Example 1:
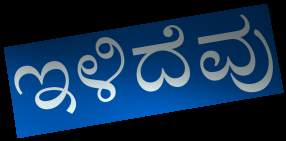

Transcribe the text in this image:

ಇಳಿದೆವು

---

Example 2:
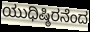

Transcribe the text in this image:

ಯುಧಿಷ್ಠಿರನೆಂದ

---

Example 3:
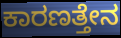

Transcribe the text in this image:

ಕಾರಣತ್ತೇನ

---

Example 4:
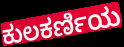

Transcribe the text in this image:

ಕುಲಕರ್ಣಿಯ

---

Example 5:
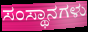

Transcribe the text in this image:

ಸಂಸ್ಥಾನಗಳು